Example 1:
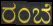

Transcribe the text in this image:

ರಂಬೆ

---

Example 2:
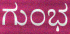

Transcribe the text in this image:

ಗುಂಭ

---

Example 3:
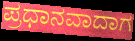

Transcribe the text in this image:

ಪ್ರಧಾನವಾದಾಗ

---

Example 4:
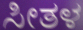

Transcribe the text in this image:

ಸೀತಳ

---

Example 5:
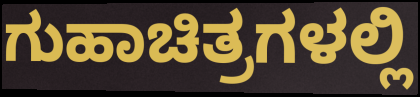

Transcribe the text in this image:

ಗುಹಾಚಿತ್ರಗಳಲ್ಲಿ